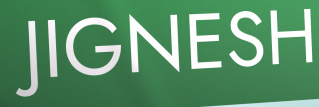
JIGNESH